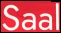
Saal